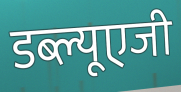
डब्ल्यूएजी